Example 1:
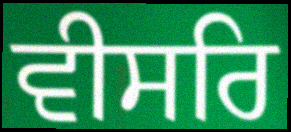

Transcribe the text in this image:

ਵੀਸਰਿ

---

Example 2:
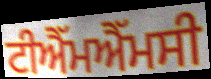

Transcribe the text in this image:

ਟੀਐੱਮਐੱਮਸੀ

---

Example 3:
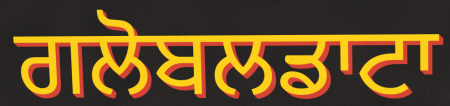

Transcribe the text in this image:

ਗਲੋਬਲਡਾਟਾ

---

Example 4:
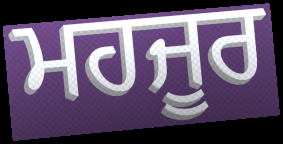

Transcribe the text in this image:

ਮਹਜੂਰ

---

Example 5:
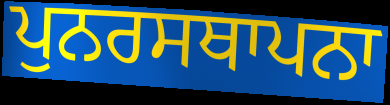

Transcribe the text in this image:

ਪੁਨਰਸਥਾਪਨਾ